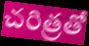
చరిత్రతో